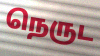
நெருட